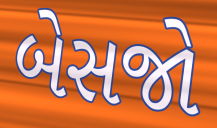
બેસજો